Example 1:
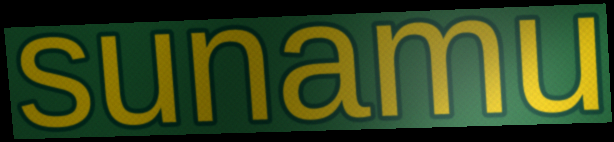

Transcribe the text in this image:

sunamu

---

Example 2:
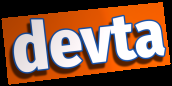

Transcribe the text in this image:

devta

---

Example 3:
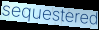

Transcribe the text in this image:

sequestered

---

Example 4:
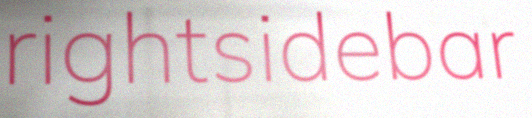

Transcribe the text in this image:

rightsidebar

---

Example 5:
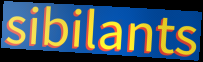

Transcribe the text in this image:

sibilants